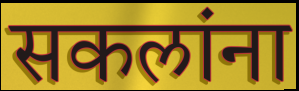
सकलांना